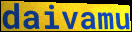
daivamu